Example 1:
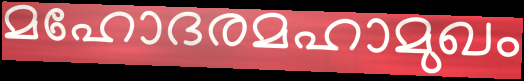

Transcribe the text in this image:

മഹോദരമഹാമുഖം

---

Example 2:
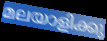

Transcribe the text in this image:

മലയാളിക്കു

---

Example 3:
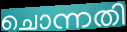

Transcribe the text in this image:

ചൊന്നതി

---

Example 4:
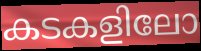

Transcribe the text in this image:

കടകളിലോ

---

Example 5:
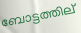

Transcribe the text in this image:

ബോട്ടത്തില്